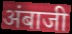
अंबाजी